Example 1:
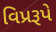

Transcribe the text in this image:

વિપ્રરૂપે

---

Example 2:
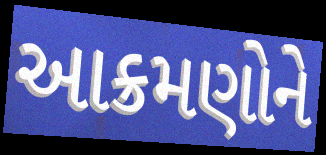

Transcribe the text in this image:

આક્રમણોને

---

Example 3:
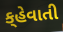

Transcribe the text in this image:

ક્‌હેવાતી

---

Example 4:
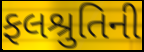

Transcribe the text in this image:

ફલશ્રુતિની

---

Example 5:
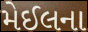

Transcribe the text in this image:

મેઈલના